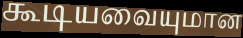
கூடியவையுமான